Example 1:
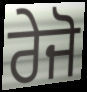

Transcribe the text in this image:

ਰੇਜੋ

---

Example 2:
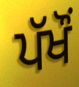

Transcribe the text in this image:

ਪੱਖੌਂ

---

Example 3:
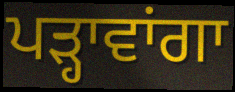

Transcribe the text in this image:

ਪੜ੍ਹਾਵਾਂਗਾ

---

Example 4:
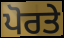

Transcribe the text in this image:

ਪੋਰਤੇ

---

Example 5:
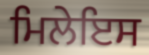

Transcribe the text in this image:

ਮਿਲੇਇਸ